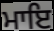
ਮਾਇ